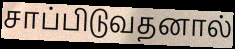
சாப்பிடுவதனால்